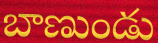
బాణుండు